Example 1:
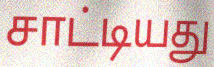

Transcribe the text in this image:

சாட்டியது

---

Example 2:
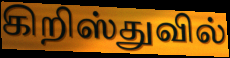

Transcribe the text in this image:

கிறிஸ்துவில்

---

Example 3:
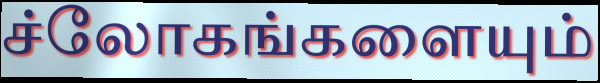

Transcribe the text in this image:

ச்லோகங்களையும்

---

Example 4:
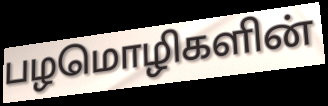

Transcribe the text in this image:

பழமொழிகளின்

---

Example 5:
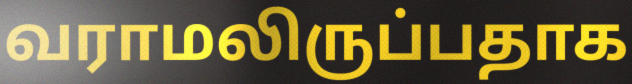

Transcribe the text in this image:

வராமலிருப்பதாக